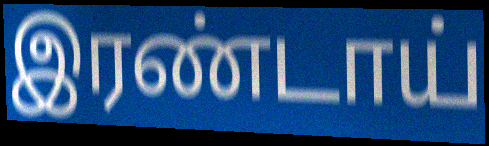
இரண்டாய்